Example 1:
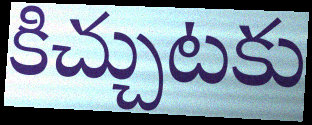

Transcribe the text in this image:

కిచ్చుటకు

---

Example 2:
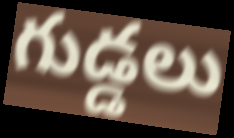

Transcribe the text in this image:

గుడ్డలు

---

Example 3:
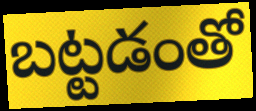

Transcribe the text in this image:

బట్టడంతో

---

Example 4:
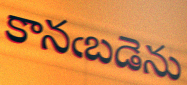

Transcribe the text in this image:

కానఁబడెను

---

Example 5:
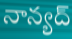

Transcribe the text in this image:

నాన్యద్